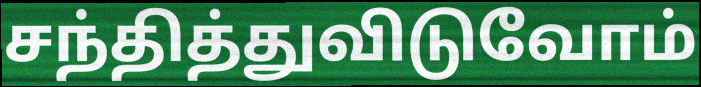
சந்தித்துவிடுவோம்